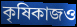
কৃষিকাজও